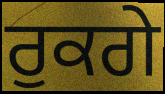
ਰੁਕਗੇ